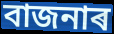
বাজনাৰ